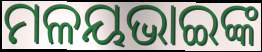
ମଳୟଭାଇଙ୍କ